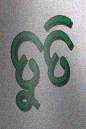
ତୁତି